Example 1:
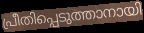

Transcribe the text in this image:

പ്രീതിപ്പെടുത്താനായി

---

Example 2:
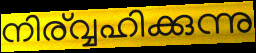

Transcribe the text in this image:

നിര്വ്വഹിക്കുന്നു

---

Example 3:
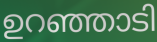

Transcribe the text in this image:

ഉറഞ്ഞാടി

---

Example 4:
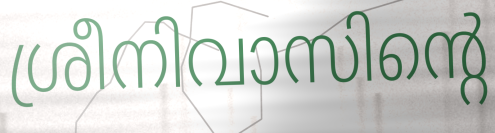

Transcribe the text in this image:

ശ്രീനിവാസിന്റെ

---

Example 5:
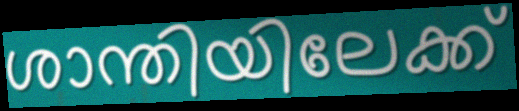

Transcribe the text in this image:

ശാന്തിയിലേക്ക്